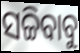
ସଚ୍ଚିବାବୁ